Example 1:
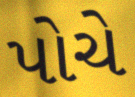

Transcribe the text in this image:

પોચે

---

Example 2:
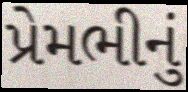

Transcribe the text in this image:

પ્રેમભીનું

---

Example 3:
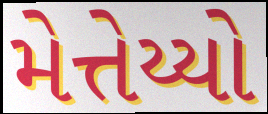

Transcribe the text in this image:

મેત્તેય્યો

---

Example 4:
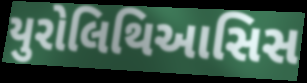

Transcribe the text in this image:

યુરોલિથિઆસિસ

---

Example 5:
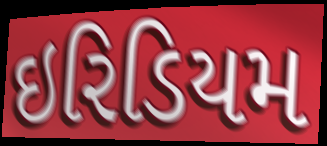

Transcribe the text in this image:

ઇરિડિયમ